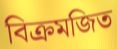
বিক্রমজিত